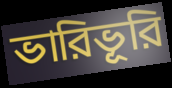
ভারিভূরি